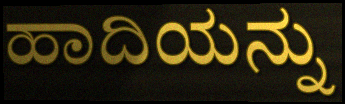
ಹಾದಿಯನ್ನು